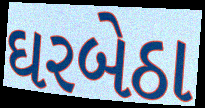
ઘરબેઠા